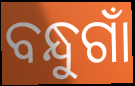
ବନ୍ଧୁଗାଁ